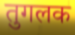
तुगलक